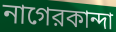
নাগেরকান্দা